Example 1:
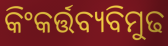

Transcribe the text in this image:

କିଂକର୍ତ୍ତବ୍ଯବିମୁଢ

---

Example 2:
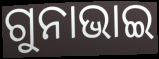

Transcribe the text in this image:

ଗୁନାଭାଇ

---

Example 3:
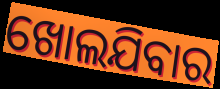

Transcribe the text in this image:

ଖୋଲଯିବାର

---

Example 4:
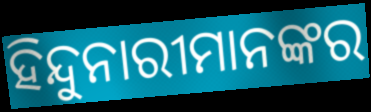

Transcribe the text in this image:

ହିନ୍ଦୁନାରୀମାନଙ୍କର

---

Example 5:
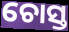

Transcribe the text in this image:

ଚୋସ୍ତ